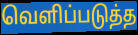
வெளிப்படுத்த